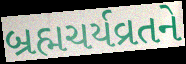
બ્રહ્મચર્યવ્રતને